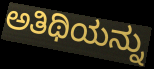
ಅತಿಥಿಯನ್ನು